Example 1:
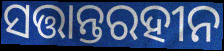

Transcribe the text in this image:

ସତ୍ତାନ୍ତରହୀନ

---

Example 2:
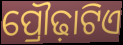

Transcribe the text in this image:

ପ୍ରୌଢ଼ାଟିଏ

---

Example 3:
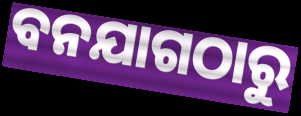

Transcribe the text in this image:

ବନଯାଗଠାରୁ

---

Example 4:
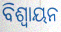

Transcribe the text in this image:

ବିଶ୍ଵାୟନ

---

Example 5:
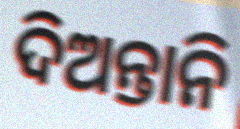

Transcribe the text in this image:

ଦିଅନ୍ତାନି